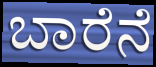
ಬಾರೆನೆ